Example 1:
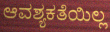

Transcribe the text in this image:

ಆವಶ್ಯಕತೆಯಿಲ್ಲ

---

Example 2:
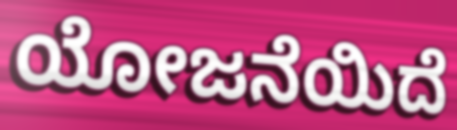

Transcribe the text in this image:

ಯೋಜನೆಯಿದೆ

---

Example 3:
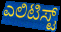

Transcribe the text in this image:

ಎಲಿಟಿಸ್ಟ್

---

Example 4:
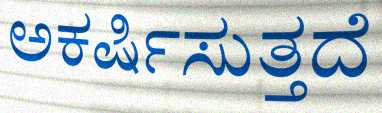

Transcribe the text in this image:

ಅಕರ್ಷಿಸುತ್ತದೆ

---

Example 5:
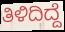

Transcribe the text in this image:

ತಿಳಿದಿದ್ದೆ